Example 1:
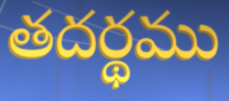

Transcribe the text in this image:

తదర్థము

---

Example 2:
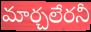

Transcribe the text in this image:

మార్చలేరనీ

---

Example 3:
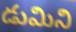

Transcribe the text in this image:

డుమిని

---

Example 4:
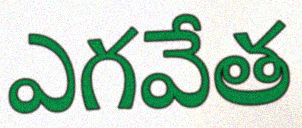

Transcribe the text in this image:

ఎగవేత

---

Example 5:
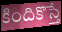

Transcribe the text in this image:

కిందికొస్తే